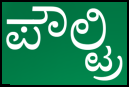
ಪೌಲ್ಟ್ರಿ